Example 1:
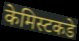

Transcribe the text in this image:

केमिस्टकडे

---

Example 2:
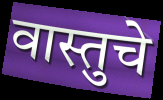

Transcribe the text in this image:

वास्तुचे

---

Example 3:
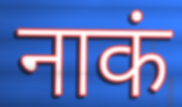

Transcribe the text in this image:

नाकं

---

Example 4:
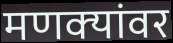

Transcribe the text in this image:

मणक्यांवर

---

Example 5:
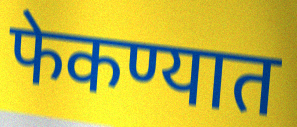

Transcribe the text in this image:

फेकण्यात